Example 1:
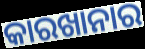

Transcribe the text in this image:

କାରଖାନାର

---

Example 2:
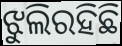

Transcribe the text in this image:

ଝୁଲିରହିଛି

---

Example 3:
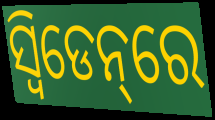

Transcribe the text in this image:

ସ୍ୱିଡେନ୍‌ରେ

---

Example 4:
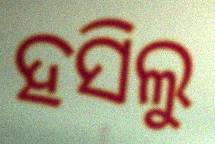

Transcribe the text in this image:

ହସିଲୁ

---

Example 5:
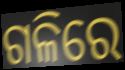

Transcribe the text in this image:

ଗଳିରେ